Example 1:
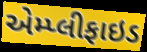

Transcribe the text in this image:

એમ્પ્લીફાઇડ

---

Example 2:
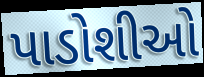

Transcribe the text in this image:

પાડોશીઓ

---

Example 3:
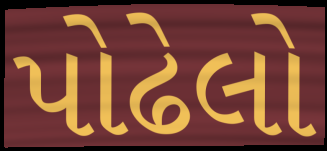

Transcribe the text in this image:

પોઢેલો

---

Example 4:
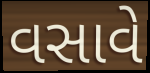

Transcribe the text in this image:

વસાવે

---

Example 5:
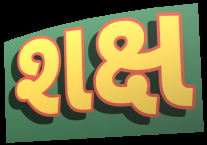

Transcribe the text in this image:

શક્ષ